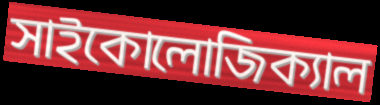
সাইকোলোজিক্যাল